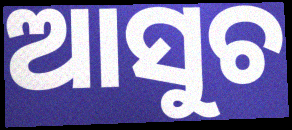
ଆସୁଚ